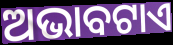
ଅଭାବଟାଏ